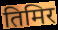
तिमिर